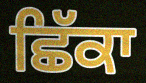
ਛਿੱਕਾ